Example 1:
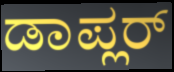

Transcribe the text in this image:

ಡಾಪ್ಲರ್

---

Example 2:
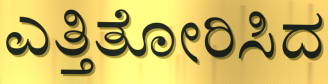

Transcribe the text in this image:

ಎತ್ತಿತೋರಿಸಿದ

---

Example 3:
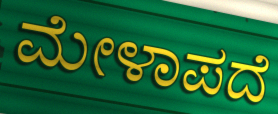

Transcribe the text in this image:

ಮೇಳಾಪದೆ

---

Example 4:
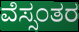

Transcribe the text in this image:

ವೆಸ್ಸಂತರ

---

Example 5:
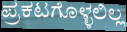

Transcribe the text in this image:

ಪ್ರಕಟಗೊಳ್ಳಲಿಲ್ಲ